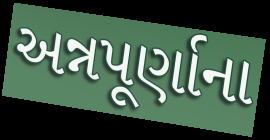
અન્નપૂર્ણાના